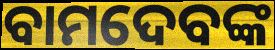
ବାମଦେବଙ୍କ